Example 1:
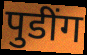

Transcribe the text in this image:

पुडींग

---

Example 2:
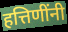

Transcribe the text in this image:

हत्तिणींनी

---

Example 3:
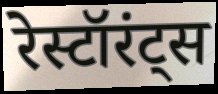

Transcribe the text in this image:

रेस्टॉरंट्स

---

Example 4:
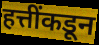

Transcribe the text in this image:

हत्तींकडून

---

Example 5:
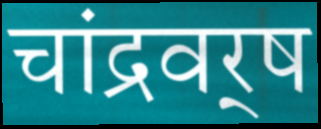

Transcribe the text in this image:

चांद्रवर्ष